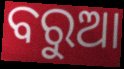
ବରୁଆ